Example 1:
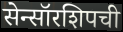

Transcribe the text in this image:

सेन्सॉरशिपची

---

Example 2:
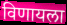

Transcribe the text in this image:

विणायला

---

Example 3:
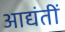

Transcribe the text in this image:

आद्यंतीं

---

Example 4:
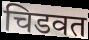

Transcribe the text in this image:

चिडवत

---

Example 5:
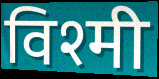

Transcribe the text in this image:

विश्मी